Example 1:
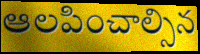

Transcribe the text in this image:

ఆలపించాల్సిన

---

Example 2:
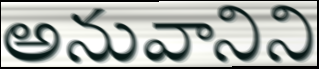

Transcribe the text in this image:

అనువానిని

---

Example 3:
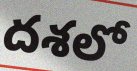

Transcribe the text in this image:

దశలో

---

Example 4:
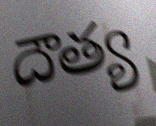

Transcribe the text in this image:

దౌత్య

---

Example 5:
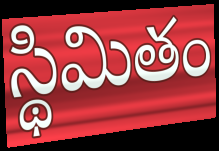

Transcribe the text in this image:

స్థిమితం